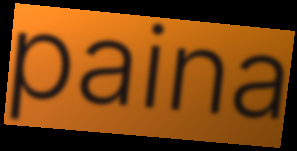
paina